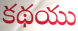
కథయు